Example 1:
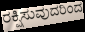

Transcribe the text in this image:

ರಕ್ಷಿಸುವುದರಿಂದ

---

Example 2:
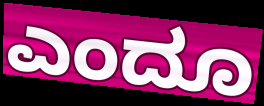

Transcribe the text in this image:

ಎಂದೂ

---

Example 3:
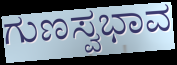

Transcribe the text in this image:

ಗುಣಸ್ವಭಾವ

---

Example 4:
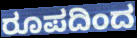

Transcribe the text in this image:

ರೂಪದಿಂದ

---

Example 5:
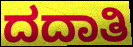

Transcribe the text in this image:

ದದಾತಿ